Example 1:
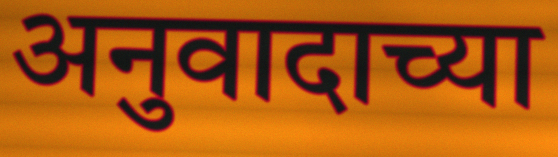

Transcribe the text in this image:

अनुवादाच्या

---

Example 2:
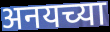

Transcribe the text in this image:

अनयच्या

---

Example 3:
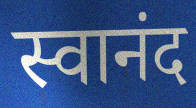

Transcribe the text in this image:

स्वानंद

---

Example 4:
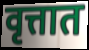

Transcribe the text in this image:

वृत्तात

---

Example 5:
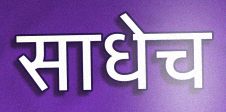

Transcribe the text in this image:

साधेच